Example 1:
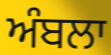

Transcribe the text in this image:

ਅੰਬਲਾ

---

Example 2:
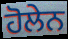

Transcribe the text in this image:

ਹੋਲੇਨ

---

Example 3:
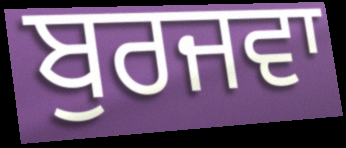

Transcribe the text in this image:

ਬੁਰਜਵਾ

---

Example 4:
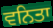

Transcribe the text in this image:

ਵਨਿਤਾ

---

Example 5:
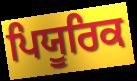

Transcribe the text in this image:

ਪਿਯੂਰਿਕ